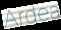
Ardea